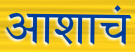
आशाचं